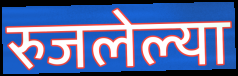
रुजलेल्या